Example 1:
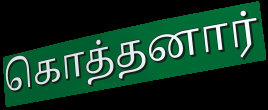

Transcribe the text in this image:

கொத்தனார்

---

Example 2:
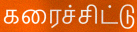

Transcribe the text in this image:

கரைச்சிட்டு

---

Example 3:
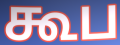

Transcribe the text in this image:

கூப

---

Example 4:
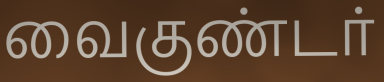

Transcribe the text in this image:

வைகுண்டர்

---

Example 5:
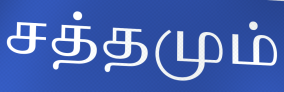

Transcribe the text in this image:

சத்தமும்